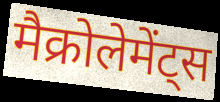
मैक्रोलेमेंट्स